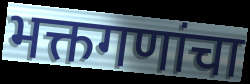
भक्तगणांचा